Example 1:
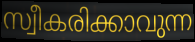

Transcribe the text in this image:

സ്വീകരിക്കാവുന്ന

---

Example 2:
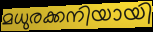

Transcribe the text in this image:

മധുരക്കനിയായി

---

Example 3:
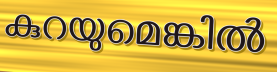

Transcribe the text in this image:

കുറയുമെങ്കിൽ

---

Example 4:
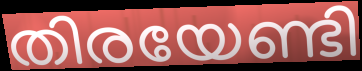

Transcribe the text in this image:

തിരയേണ്ടി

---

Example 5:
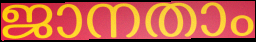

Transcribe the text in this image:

ജാനതാം